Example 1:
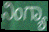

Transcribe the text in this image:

ನಿಂಗ್ಯಾ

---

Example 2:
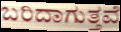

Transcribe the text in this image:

ಬರಿದಾಗುತ್ತವೆ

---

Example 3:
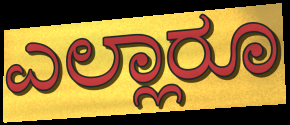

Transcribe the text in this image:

ಎಲ್ಲಾರೂ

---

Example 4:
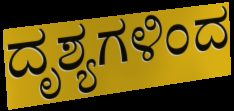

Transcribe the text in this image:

ದೃಶ್ಯಗಳಿಂದ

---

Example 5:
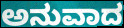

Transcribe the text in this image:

ಅನುವಾದ